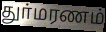
துர்மரணம்